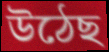
উঠেছ